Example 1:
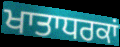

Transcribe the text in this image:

ਖਾਤਾਧਰਕਾਂ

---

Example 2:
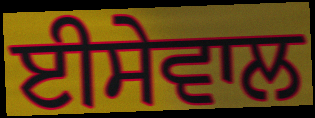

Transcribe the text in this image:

ਈਸੇਵਾਲ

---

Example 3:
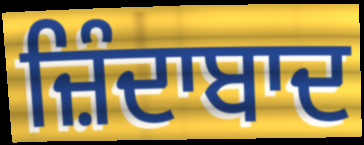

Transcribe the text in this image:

ਜ਼ਿੰਦਾਬਾਦ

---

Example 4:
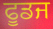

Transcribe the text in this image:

ਫੂਡਜ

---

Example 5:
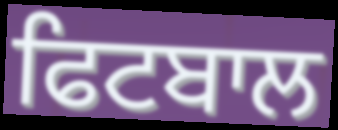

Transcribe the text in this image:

ਫਿਟਬਾਲ